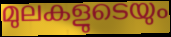
മുലകളുടെയും